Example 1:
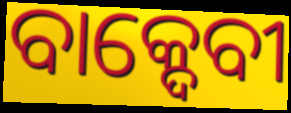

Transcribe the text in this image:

ବାକ୍ଦେବୀ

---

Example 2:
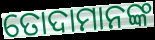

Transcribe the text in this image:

ତୋଦାମାନଙ୍କ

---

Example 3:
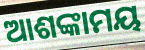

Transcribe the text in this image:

ଆଶଙ୍କାମୟ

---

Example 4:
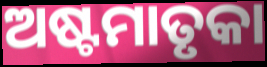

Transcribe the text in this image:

ଅଷ୍ଟମାତୃକା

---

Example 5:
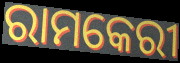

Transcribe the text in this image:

ରାମକେରୀ